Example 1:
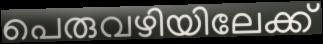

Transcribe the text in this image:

പെരുവഴിയിലേക്ക്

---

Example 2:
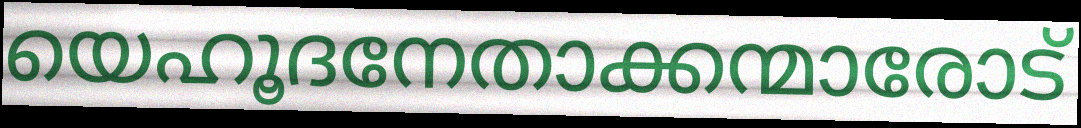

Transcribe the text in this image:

യെഹൂദനേതാക്കന്മാരോട്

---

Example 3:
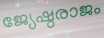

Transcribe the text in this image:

ജ്യേഷ്ഠരാജം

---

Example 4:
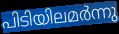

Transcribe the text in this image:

പിടിയിലമർന്നു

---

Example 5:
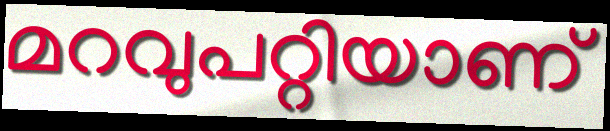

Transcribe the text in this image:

മറവുപറ്റിയാണ്